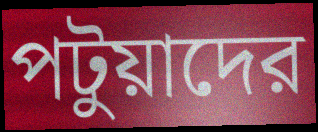
পটুয়াদের